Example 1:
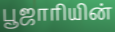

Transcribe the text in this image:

பூஜாரியின்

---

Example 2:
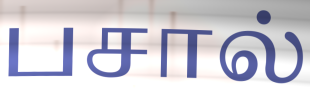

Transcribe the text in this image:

பசால்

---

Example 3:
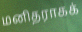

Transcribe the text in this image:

மனிதராகக்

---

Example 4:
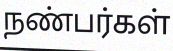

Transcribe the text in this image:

நண்பர்கள்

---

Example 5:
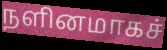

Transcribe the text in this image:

நளினமாகச்